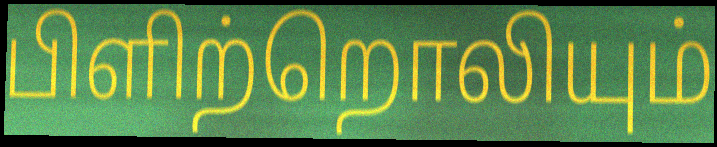
பிளிற்றொலியும்